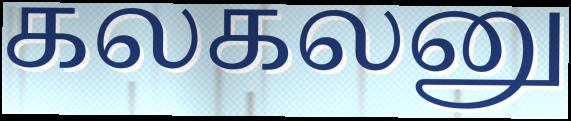
கலகலனு